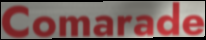
Comarade